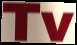
Tv